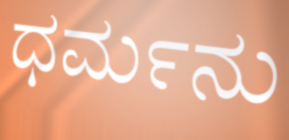
ಧರ್ಮನು